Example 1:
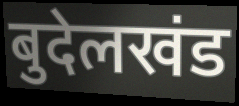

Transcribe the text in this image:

बुदेलखंड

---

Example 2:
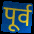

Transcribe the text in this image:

पूर्व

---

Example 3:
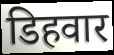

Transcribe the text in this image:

डिहवार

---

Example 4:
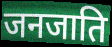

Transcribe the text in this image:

जनजाति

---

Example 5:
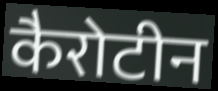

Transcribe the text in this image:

कैरोटीन